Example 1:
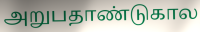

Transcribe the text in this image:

அறுபதாண்டுகால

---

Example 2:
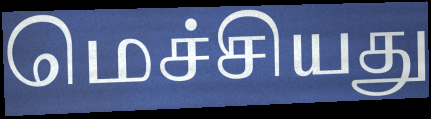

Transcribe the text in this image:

மெச்சியது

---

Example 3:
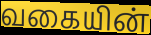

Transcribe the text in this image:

வகையின்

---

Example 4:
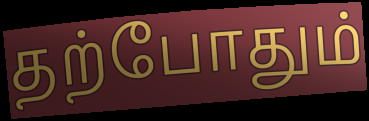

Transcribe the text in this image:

தற்போதும்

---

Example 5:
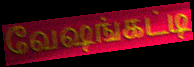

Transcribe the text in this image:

வேஷங்கட்டி